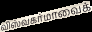
விஸ்வகர்மாவைக்